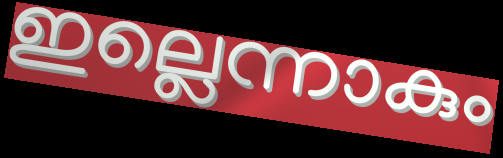
ഇല്ലെന്നാകും